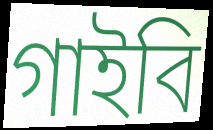
গাইবি